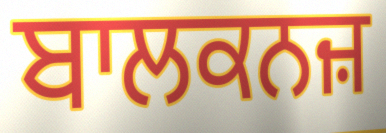
ਬਾਲਕਨਜ਼